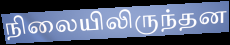
நிலையிலிருந்தன